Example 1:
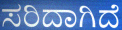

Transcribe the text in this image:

ಸರಿದಾಗಿದೆ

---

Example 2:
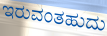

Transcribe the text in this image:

ಇರುವಂತಹುದು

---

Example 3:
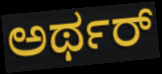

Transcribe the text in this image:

ಅರ್ಥರ್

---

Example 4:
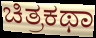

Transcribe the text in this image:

ಚಿತ್ರಕಥಾ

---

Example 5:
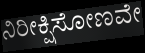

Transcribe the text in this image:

ನಿರೀಕ್ಷಿಸೋಣವೇ